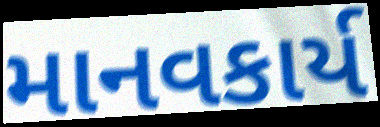
માનવકાર્ય